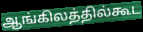
ஆங்கிலத்தில்கூட